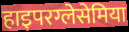
हाइपरग्लेसेमिया